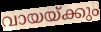
വായയ്ക്കും